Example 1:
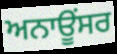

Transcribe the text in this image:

ਅਨਾਊਂਸਰ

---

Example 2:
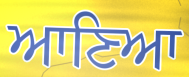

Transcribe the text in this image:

ਆਣਿਆ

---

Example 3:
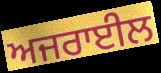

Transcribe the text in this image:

ਅਜਰਾਈਲ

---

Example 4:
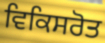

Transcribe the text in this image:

ਵਿਕਿਸਰੋਤ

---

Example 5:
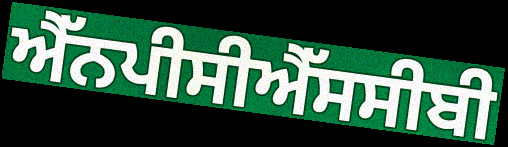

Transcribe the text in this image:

ਐੱਨਪੀਸੀਐੱਸਸੀਬੀ